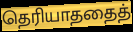
தெரியாததைத்